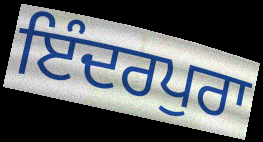
ਇੰਦਰਪੁਰਾ